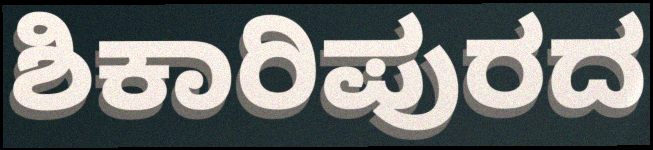
ಶಿಕಾರಿಪುರದ